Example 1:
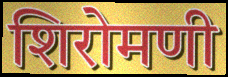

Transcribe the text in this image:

शिरोमणी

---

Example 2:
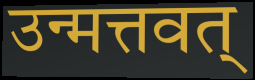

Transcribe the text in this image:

उन्मत्तवत्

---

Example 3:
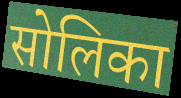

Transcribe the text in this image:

सोलिका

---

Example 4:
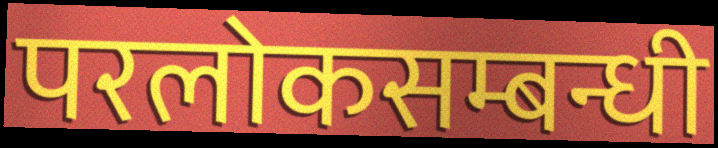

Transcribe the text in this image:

परलोकसम्बन्धी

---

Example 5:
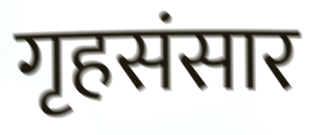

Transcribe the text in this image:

गृहसंसार